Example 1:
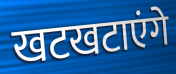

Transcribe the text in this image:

खटखटाएंगे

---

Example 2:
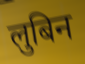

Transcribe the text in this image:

लुबिन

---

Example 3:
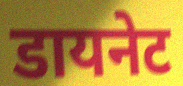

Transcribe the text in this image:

डायनेट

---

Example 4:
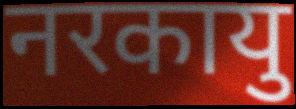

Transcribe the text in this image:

नरकायु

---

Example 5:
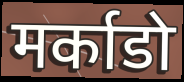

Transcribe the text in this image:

मर्काडो